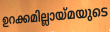
ഉറക്കമില്ലായ്മയുടെ